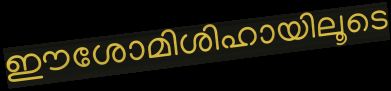
ഈശോമിശിഹായിലൂടെ